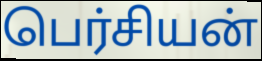
பெர்சியன்